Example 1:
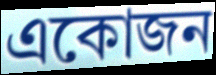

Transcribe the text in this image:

একোজন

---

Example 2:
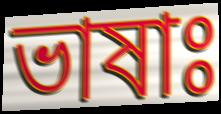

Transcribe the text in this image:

ভাষাঃ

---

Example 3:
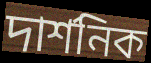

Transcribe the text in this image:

দাৰ্শনিক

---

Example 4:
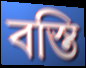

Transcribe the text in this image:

বস্তি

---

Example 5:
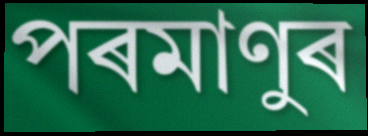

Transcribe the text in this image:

পৰমাণুৰ